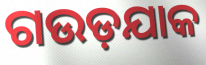
ଗଉଡ଼ଯାକ